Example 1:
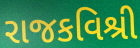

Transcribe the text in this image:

રાજકવિશ્રી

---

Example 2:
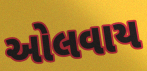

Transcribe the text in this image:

ઓલવાય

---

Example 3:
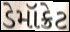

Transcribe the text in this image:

ડેમૉક્રેટ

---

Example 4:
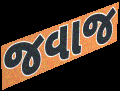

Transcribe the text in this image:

જવાજ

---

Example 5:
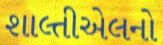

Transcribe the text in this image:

શાલ્તીએલનો